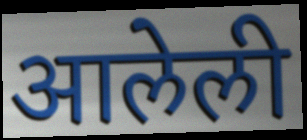
आलेली